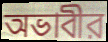
অভাবীর